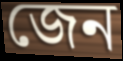
জেন